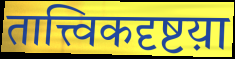
तात्त्विकदृष्टय़ा